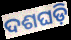
ଦଶଘଡ଼ି